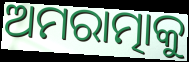
ଅମରାତ୍ମାକୁ